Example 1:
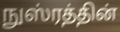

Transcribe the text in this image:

நுஸ்ரத்தின்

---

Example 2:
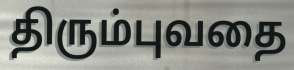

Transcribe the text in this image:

திரும்புவதை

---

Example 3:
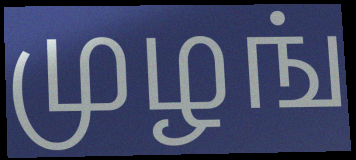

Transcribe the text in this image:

முழங்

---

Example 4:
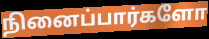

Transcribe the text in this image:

நினைப்பார்களோ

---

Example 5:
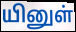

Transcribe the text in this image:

யினுள்